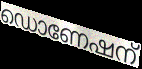
ഡൊണേഷന്